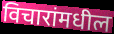
विचारांमधील